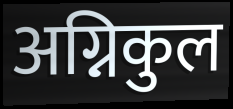
अग्निकुल